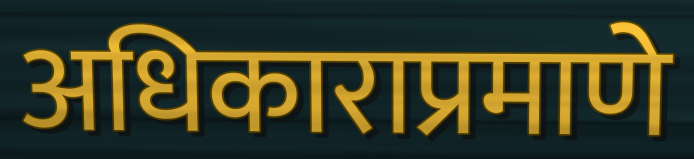
अधिकाराप्रमाणे